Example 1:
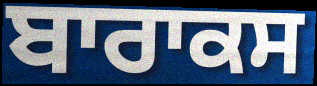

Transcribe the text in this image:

ਬਾਰਾਕਸ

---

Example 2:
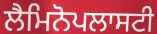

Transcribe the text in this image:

ਲੈਮਿਨੋਪਲਾਸਟੀ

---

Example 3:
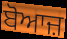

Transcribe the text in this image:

ਬੋਆਜ਼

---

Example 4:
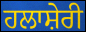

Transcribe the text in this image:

ਹਲਾਸ਼ੇਰੀ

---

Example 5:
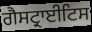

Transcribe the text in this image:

ਗੈਸਟ੍ਰਾਈਟਿਸ